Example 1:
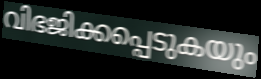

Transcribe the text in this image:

വിഭജിക്കപ്പെടുകയും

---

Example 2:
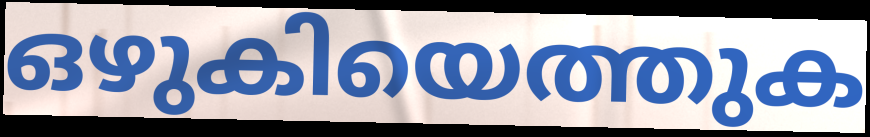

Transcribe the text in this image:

ഒഴുകിയെത്തുക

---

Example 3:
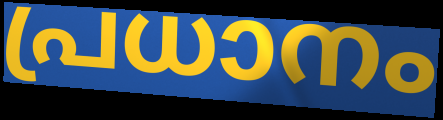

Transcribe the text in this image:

പ്രധാനം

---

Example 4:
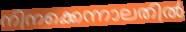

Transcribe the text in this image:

നിനക്കെന്നാലതിൽ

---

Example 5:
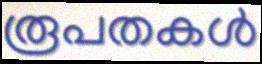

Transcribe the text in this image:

രൂപതകൾ